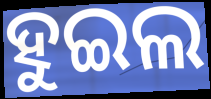
ହୁଇଲ